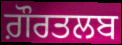
ਗ਼ੌਰਤਲਬ